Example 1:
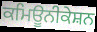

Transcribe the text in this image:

ਕਮਿਊਨੀਕੇਸ਼ਨ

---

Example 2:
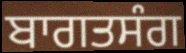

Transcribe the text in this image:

ਬਾਗਤਸੰਗ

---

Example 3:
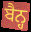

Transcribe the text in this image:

ਬੈਨ੍ਹ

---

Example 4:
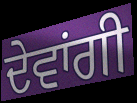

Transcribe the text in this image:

ਦੇਵਾਂਗੀ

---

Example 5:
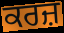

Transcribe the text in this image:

ਕਰਜ਼